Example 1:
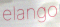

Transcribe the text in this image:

elango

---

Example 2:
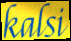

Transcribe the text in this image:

kalsi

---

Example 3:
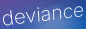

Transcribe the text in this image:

deviance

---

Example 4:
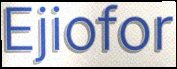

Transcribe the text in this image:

Ejiofor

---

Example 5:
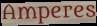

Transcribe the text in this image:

Amperes